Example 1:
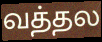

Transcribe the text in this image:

வத்தல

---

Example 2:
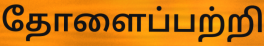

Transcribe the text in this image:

தோளைப்பற்றி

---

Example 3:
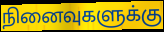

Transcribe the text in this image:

நினைவுகளுக்கு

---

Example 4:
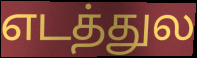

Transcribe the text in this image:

எடத்துல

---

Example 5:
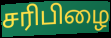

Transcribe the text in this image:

சரிபிழை